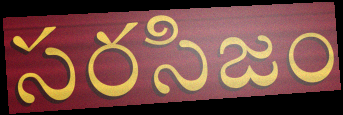
సరసిజం